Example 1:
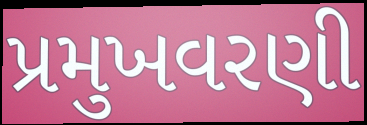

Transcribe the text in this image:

પ્રમુખવરણી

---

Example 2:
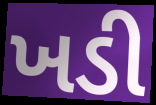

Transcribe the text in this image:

ખડી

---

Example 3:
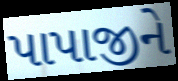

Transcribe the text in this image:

પાપાજીને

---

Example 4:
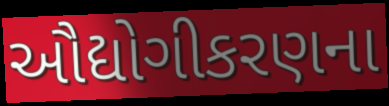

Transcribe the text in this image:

ઔદ્યોગીકરણના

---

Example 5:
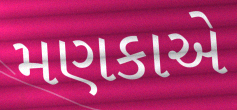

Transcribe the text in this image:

મણકાએ